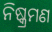
ନିଷ୍କ୍ରମଣ